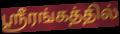
ஸ்ரீரங்கத்தில்